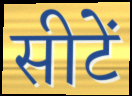
सीटें